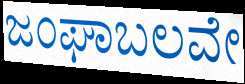
ಜಂಘಾಬಲವೇ